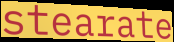
stearate